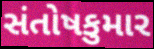
સંતોષકુમાર